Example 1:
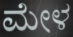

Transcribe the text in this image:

ಮೇಳ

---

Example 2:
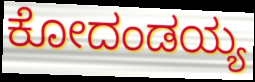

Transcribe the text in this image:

ಕೋದಂಡಯ್ಯ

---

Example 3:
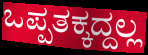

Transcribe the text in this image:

ಒಪ್ಪತಕ್ಕದ್ದಲ್ಲ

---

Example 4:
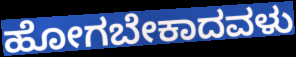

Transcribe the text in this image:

ಹೋಗಬೇಕಾದವಳು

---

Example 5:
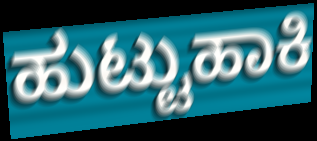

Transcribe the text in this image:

ಹುಟ್ಟುಹಾಕಿ